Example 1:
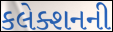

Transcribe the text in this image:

કલેક્શનની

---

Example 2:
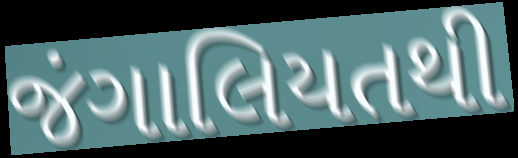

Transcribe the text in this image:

જંગાલિયતથી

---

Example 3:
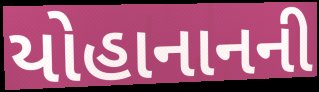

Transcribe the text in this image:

યોહાનાનની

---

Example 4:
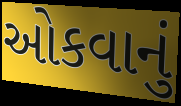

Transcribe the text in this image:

ઓકવાનું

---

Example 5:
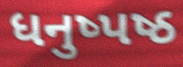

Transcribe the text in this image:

ધનુષ્પષ્ઠ